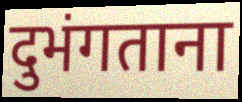
दुभंगताना